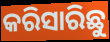
କରିସାରିଛୁ